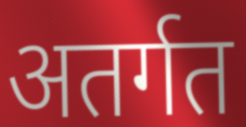
अतर्गत